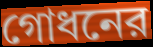
গোধনের